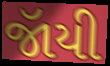
જૉયી